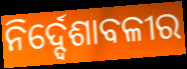
ନିର୍ଦ୍ଦେଶାବଳୀର